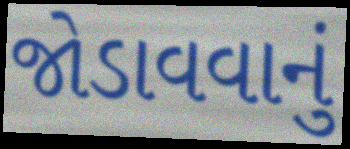
જોડાવવાનું